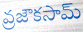
వ్రజౌకసామ్